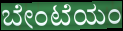
ಬೇಂಟೆಯಂ